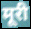
मूरी